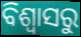
ବିଶ୍ବାସରୁ